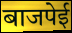
बाजपेई